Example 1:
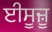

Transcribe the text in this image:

ਈਸੂਜ਼ੂ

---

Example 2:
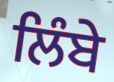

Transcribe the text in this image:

ਲਿੰਬੇ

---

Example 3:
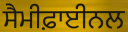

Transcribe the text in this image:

ਸੈਮੀਫ਼ਾਈਨਲ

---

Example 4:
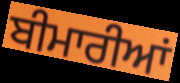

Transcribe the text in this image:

ਬੀਮਾਰੀਆਂ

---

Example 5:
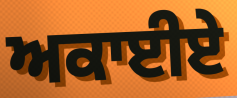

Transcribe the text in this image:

ਅਕਾਈਏ